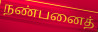
நண்பனைத்